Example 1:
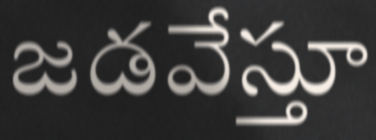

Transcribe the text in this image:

జడవేస్తూ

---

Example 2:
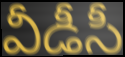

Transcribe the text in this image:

వీడీసీ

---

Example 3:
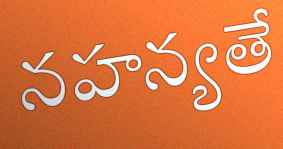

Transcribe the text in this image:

నహన్యతే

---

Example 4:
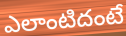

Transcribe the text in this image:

ఎలాంటిదంటే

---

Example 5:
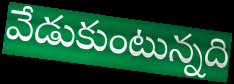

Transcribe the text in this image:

వేడుకుంటున్నది